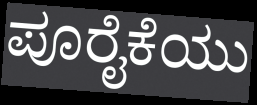
ಪೂರೈಕೆಯು